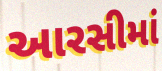
આરસીમાં